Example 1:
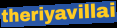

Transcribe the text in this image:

theriyavillai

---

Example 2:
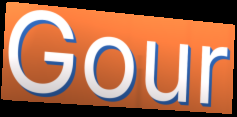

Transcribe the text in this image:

Gour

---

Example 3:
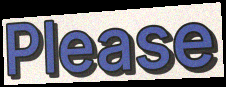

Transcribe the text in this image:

Please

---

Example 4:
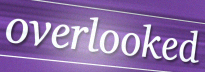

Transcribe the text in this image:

overlooked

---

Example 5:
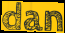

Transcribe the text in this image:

dan